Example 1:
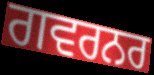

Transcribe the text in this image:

ਗਵਰਨਰ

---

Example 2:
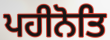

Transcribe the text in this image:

ਪਹੀਨੋਤਿ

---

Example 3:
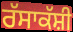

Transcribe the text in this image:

ਰੱਸਾਕੱਸ਼ੀ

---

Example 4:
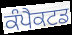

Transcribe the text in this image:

ਕੰਪੈਕਟਡ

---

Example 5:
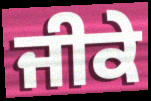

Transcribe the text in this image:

ਜੀਕੇ